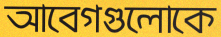
আবেগগুলোকে